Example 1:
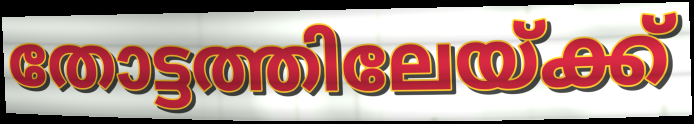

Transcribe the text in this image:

തോട്ടത്തിലേയ്ക്ക്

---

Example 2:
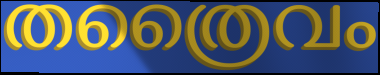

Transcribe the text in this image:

തത്രൈവം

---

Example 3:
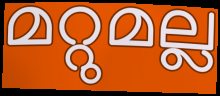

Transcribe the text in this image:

മറ്റുമല്ല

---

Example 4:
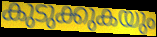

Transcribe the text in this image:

കുടുക്കുകയും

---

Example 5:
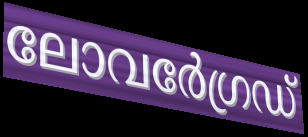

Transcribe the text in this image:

ലോവർേഗ്രഡ്